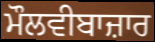
ਮੌਲਵੀਬਾਜ਼ਾਰ